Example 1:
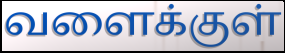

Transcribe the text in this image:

வளைக்குள்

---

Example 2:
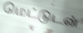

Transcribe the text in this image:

மெட்டுடன்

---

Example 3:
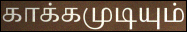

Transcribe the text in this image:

காக்கமுடியும்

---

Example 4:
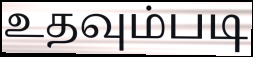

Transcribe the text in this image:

உதவும்படி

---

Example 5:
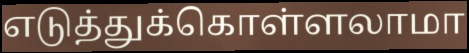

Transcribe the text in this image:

எடுத்துக்கொள்ளலாமா